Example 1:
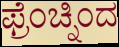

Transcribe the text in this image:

ಫ್ರೆಂಚ್ನಿಂದ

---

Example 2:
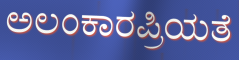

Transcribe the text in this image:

ಅಲಂಕಾರಪ್ರಿಯತೆ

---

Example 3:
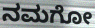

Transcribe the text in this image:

ನಮಗೋ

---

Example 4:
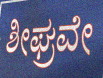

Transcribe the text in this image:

ಶೀಘ್ರವೇ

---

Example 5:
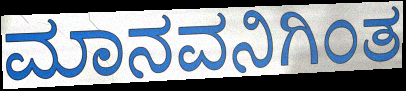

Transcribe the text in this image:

ಮಾನವನಿಗಿಂತ